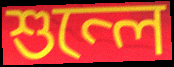
শুন্লে